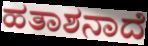
ಹತಾಶನಾದೆ